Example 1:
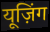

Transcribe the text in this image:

यूज़िंग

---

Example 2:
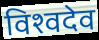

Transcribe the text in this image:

विश्वदेव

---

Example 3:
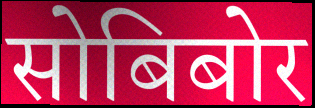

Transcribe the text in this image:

सोबिबोर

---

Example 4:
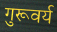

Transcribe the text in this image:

गुरूवर्य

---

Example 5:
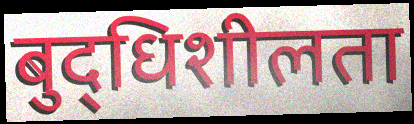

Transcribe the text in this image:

बुद्धिशीलता